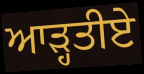
ਆੜ੍ਹਤੀਏ